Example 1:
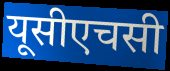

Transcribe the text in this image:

यूसीएचसी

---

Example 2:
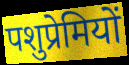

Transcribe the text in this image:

पशुप्रेमियों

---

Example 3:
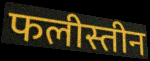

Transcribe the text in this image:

फलीस्तीन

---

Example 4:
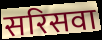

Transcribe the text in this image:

सरिसवा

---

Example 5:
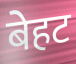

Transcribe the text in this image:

बेहट